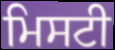
ਮਿਸਟੀ